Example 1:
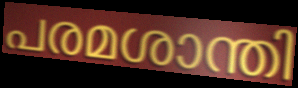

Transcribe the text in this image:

പരമശാന്തി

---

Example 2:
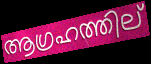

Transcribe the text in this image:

ആഗ്രഹത്തില്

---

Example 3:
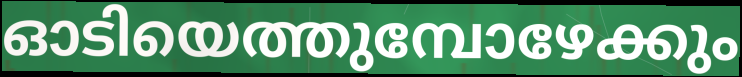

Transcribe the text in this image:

ഓടിയെത്തുമ്പോഴേക്കും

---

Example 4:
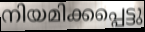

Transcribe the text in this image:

നിയമിക്കപ്പെട്ടു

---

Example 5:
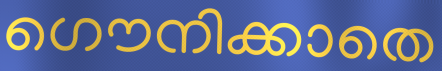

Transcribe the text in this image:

ഗൌനിക്കാതെ